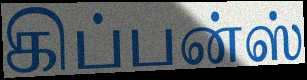
கிப்பன்ஸ்